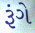
રૂંગે